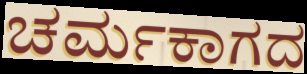
ಚರ್ಮಕಾಗದ